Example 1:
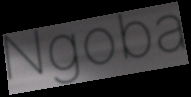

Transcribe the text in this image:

Ngoba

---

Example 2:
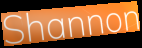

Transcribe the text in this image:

Shannon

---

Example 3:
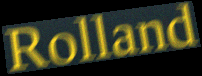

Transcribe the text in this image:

Rolland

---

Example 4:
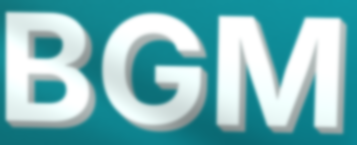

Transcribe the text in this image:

BGM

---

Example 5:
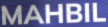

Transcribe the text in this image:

MAHBIL